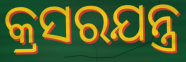
କ୍ରସରଯନ୍ତ୍ର